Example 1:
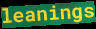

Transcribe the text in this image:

leanings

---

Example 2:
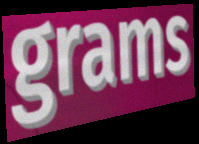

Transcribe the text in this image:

grams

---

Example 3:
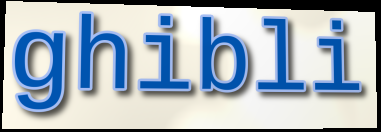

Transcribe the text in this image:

ghibli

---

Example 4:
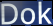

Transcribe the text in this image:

Dok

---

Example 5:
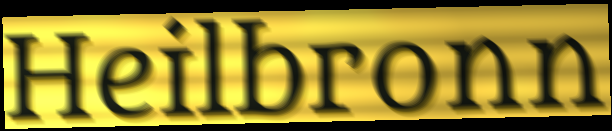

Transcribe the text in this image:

Heilbronn